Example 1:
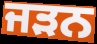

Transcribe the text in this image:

ਜੜਨ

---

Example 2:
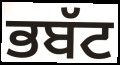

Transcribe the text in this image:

ਭਬੱਟ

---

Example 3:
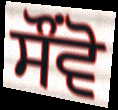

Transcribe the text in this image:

ਸੌਂਵੋ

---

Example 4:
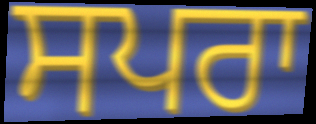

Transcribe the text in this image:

ਸਪਰਾ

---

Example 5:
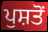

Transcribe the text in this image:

ਪੁਸ਼ਤੋਂ